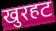
खुरहट